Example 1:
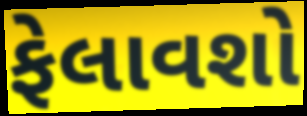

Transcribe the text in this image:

ફેલાવશો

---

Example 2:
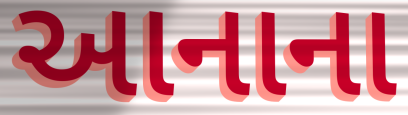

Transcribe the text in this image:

આનાના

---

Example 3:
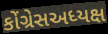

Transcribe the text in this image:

કોંગ્રેસઅધ્યક્ષ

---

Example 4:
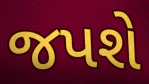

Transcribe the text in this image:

જપશે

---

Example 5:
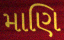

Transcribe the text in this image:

માણિ